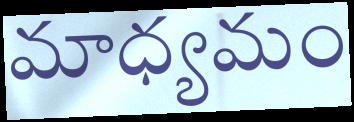
మాధ్యమం